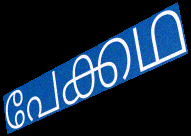
പേക്കഥ